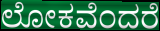
ಲೋಕವೆಂದರೆ